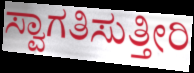
ಸ್ವಾಗತಿಸುತ್ತೀರಿ